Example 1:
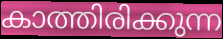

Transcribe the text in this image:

കാത്തിരിക്കുന്ന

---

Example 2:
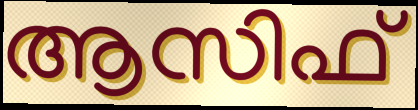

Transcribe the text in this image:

ആസിഫ്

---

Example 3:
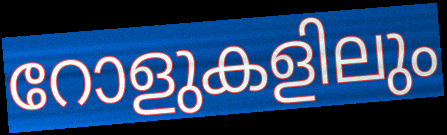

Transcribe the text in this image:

റോളുകളിലും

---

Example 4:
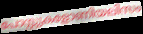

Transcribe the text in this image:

പോസ്റ്റുകളോണിയലിസം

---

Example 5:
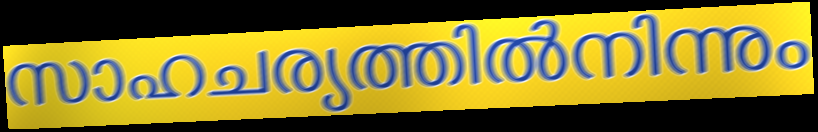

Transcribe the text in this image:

സാഹചര്യത്തിൽനിന്നും